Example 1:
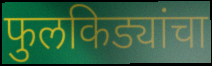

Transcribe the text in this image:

फुलकिड्यांचा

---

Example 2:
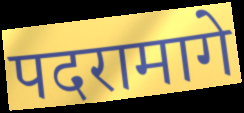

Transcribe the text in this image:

पदरामागे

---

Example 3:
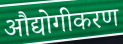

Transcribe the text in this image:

औद्योगीकरण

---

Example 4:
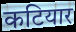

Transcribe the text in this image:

कटियार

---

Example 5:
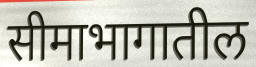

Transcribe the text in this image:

सीमाभागातील